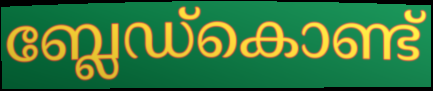
ബ്ലേഡ്കൊണ്ട്